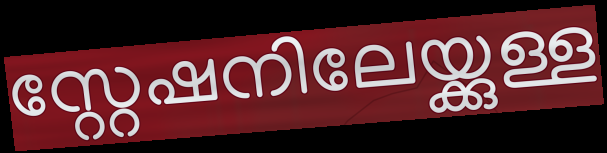
സ്റ്റേഷനിലേയ്ക്കുള്ള